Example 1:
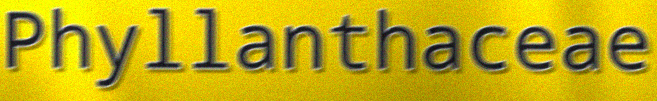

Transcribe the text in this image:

Phyllanthaceae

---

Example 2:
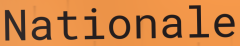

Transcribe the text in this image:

Nationale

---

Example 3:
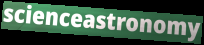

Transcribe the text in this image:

scienceastronomy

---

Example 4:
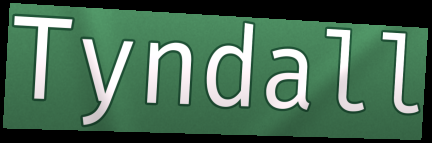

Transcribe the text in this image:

Tyndall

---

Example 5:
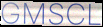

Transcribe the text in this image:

GMSCL